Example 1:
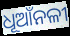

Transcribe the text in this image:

ଧୂଆଁନଳୀ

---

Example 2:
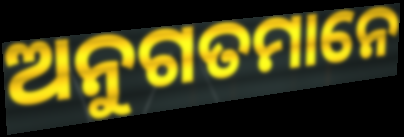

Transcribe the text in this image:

ଅନୁଗତମାନେ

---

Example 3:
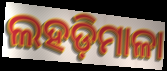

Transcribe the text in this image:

ଲହଡ଼ିମାଳା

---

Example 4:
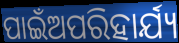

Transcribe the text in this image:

ପାଇଁଅପରିହାର୍ଯ୍ୟ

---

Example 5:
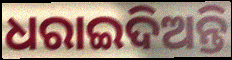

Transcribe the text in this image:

ଧରାଇଦିଅନ୍ତି